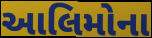
આલિમોના